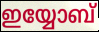
ഇയ്യോബ്